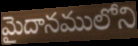
మైదానములోని